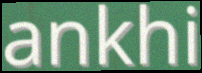
ankhi